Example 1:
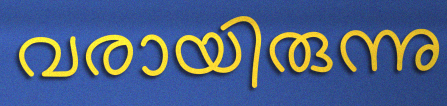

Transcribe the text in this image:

വരായിരുന്നു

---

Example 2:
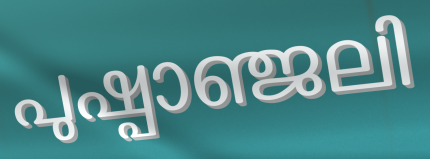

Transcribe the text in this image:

പുഷ്പാഞ്ജലി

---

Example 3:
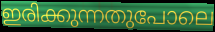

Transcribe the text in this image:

ഇരിക്കുന്നതുപോലെ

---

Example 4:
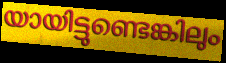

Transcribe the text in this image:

യായിട്ടുണ്ടെങ്കിലും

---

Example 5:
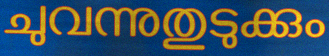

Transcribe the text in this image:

ചുവന്നുതുടുക്കും